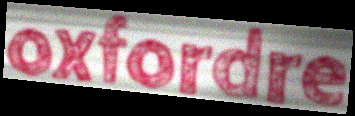
oxfordre